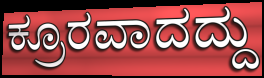
ಕ್ರೂರವಾದದ್ದು